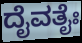
ದೈವತೈಃ